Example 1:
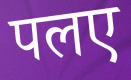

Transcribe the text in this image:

पलए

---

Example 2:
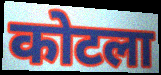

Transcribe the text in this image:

कोटला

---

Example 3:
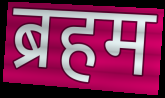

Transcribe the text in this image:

ब्रहम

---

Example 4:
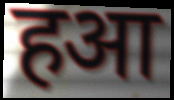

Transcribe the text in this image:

हआ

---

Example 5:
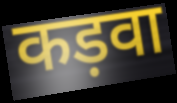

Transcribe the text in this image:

कड़वा